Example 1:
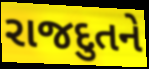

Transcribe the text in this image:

રાજદુતને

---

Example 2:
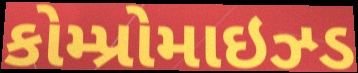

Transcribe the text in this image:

કોમ્પ્રોમાઇઝ્ડ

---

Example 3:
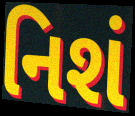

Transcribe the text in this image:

નિશં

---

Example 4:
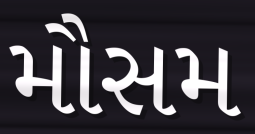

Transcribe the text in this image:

મૌસમ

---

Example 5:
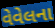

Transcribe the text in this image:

વેવેલના